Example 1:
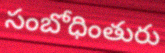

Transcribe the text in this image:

సంబోధింతురు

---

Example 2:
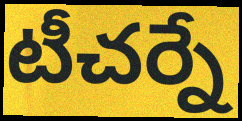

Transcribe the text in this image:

టీచర్నే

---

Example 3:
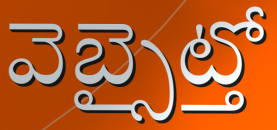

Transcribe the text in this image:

వెబ్సైట్తో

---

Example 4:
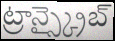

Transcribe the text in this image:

ట్రాన్స్క్రైబ్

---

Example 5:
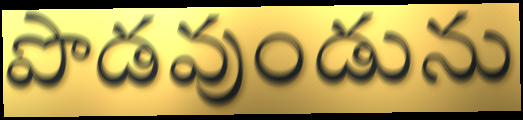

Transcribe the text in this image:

పొడవుండును